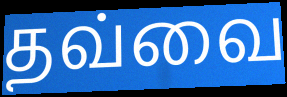
தவ்வை